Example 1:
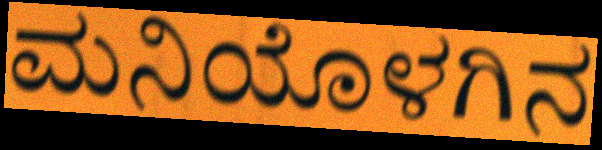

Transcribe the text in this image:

ಮನಿಯೊಳಗಿನ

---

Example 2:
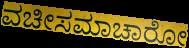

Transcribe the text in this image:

ವಚೀಸಮಾಚಾರೋ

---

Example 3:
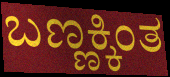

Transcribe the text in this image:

ಬಣ್ಣಕ್ಕಿಂತ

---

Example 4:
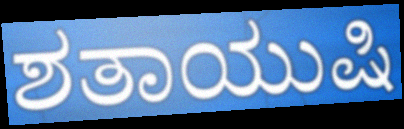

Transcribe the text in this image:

ಶತಾಯುಷಿ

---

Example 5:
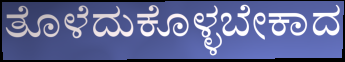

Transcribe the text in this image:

ತೊಳೆದುಕೊಳ್ಳಬೇಕಾದ